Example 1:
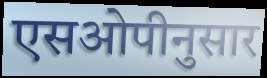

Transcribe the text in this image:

एसओपीनुसार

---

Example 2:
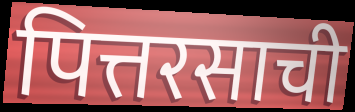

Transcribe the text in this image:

पित्तरसाची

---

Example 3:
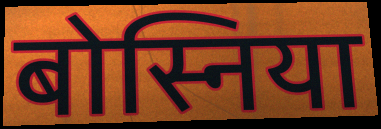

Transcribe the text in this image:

बोस्निया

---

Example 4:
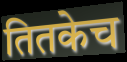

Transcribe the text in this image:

तितकेच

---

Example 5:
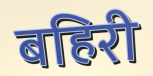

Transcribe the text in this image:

बहिरी